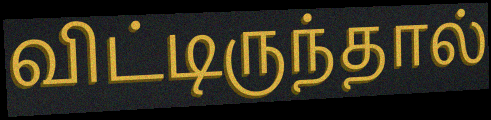
விட்டிருந்தால்